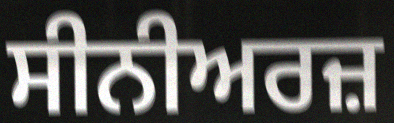
ਸੀਨੀਅਰਜ਼